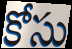
కోసు